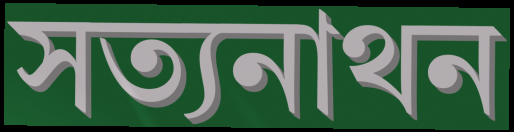
সত্যনাথন